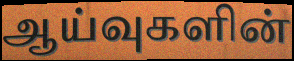
ஆய்வுகளின்